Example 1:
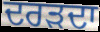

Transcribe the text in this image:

ਦਰੜਦਾ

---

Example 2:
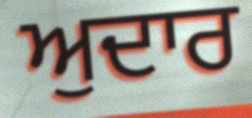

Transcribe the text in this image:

ਅੁਦਾਰ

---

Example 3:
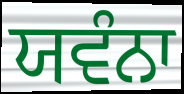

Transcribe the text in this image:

ਯਵੰਨਾ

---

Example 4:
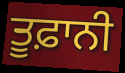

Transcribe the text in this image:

ਤੂਫ਼ਾਨੀ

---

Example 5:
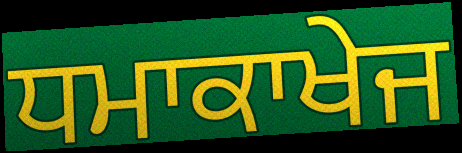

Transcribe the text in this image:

ਧਮਾਕਾਖੇਜ